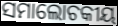
ସମାଲୋଚକୀୟ